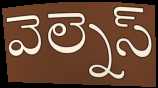
వెల్నెస్